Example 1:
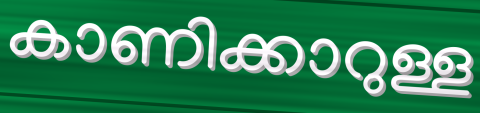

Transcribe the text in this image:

കാണിക്കാറുള്ള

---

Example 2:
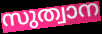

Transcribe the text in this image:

സുത്വാന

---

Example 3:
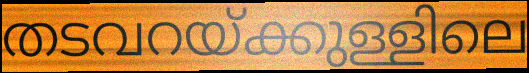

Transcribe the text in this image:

തടവറയ്ക്കുള്ളിലെ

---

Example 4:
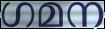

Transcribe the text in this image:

ഗമന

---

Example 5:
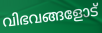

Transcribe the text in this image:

വിഭവങ്ങളോട്